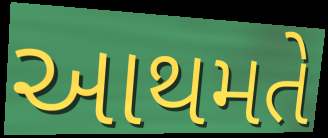
આથમતે